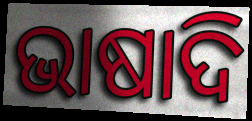
ଭାଷାଦି